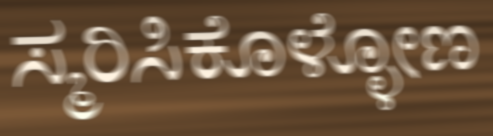
ಸ್ಮರಿಸಿಕೊಳ್ಳೋಣ